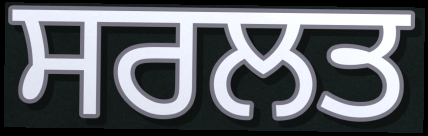
ਸਰਲਤ